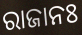
ରାଜାନଃ